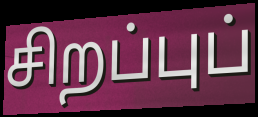
சிறப்புப்